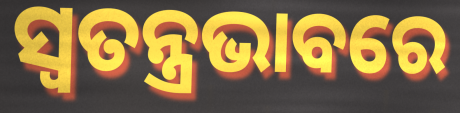
ସ୍ଵତନ୍ତ୍ରଭାବରେ